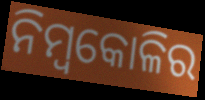
ନିମ୍ବକୋଳିର